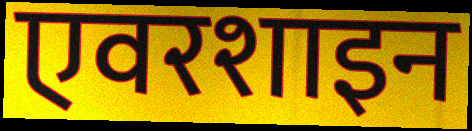
एवरशाइन